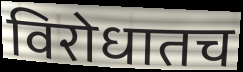
विरोधातच